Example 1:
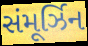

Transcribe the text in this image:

સંમૂર્ઝિન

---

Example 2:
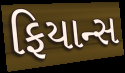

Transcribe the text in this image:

ફિયાન્સ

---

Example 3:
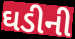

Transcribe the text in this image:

ઘડીની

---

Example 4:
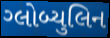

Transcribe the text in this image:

ગ્લોબ્યુલિન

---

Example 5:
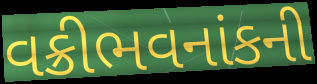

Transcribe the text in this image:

વક્રીભવનાંકની